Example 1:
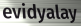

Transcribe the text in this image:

evidyalay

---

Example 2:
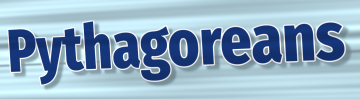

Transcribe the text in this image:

Pythagoreans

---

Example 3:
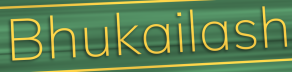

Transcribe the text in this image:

Bhukailash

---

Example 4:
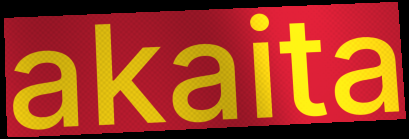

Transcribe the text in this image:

akaita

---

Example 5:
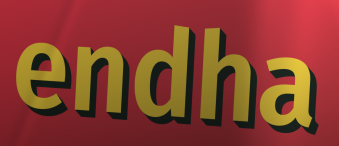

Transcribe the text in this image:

endha